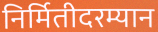
निर्मितीदरम्यान